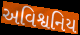
અવિશ્વનિય